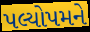
પલ્યોપમને